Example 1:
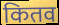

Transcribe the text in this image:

कितव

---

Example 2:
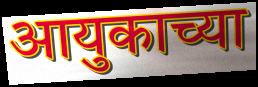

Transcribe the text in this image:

आयुकाच्या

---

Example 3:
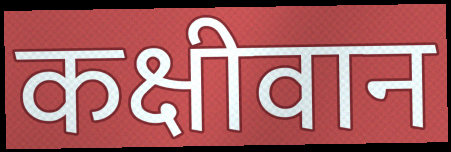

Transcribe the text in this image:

कक्षीवान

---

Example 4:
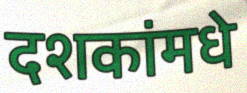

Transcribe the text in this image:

दशकांमधे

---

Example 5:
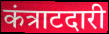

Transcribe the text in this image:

कंत्राटदारी